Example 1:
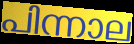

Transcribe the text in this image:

പിന്നാല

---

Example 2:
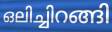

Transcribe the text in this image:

ഒലിച്ചിറങ്ങി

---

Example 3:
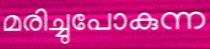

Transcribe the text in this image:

മരിച്ചുപോകുന്ന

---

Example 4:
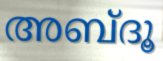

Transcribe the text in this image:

അബ്ദൂ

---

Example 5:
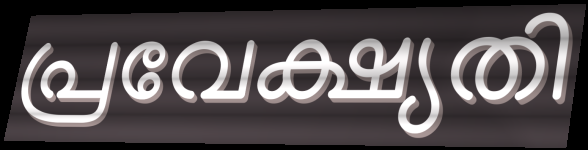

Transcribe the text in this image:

പ്രവേക്ഷ്യതി